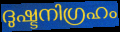
ദുഷ്ടനിഗ്രഹം